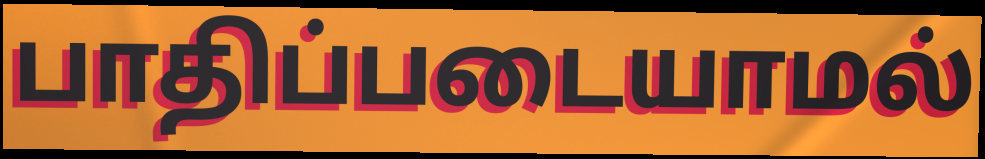
பாதிப்படையாமல்